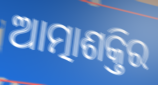
ଆତ୍ମାଶକ୍ତିର